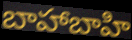
బాహాబాహి